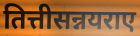
तित्तीसन्नयराए